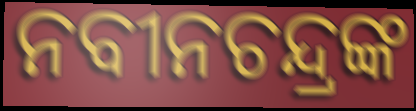
ନବୀନଚନ୍ଦ୍ରଙ୍କ